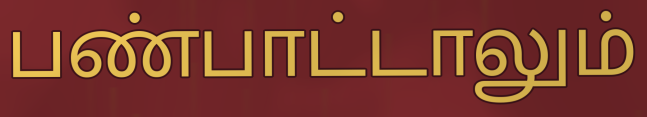
பண்பாட்டாலும்